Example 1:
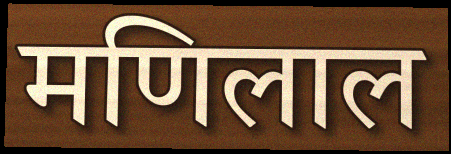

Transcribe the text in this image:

मणिलाल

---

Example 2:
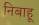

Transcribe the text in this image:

निबाहू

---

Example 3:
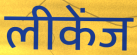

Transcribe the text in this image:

लीकेंज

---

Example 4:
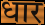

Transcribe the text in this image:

धार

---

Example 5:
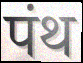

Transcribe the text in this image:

पंथ